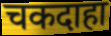
चकदाहा